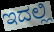
ಇದಲ್ಲಿ